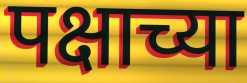
पक्षाच्या